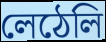
লেঠেলি